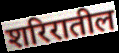
शरिरातील